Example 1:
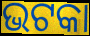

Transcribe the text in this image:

ଭଟକା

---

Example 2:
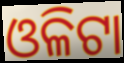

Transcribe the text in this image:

ଓଳିଟା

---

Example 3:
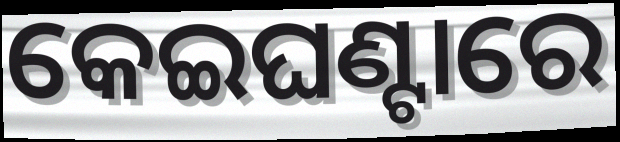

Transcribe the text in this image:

କେଇଘଣ୍ଟାରେ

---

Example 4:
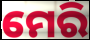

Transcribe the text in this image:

ମେରି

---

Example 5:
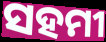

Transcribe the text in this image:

ସହମୀ